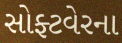
સોફ્ટવેરના